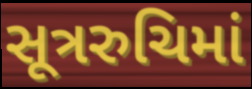
સૂત્રરુચિમાં